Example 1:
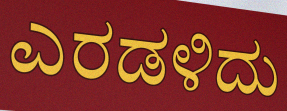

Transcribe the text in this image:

ಎರಡಳಿದು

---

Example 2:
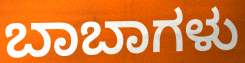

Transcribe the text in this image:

ಬಾಬಾಗಳು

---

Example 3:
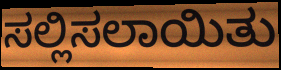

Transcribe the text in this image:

ಸಲ್ಲಿಸಲಾಯಿತು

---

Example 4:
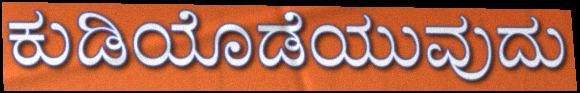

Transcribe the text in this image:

ಕುಡಿಯೊಡೆಯುವುದು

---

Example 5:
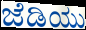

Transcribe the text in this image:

ಜೆಡಿಯು